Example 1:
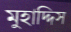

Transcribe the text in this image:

মুহাদ্দিস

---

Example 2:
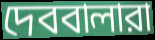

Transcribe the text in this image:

দেববালারা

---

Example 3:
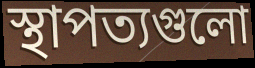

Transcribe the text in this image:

স্থাপত্যগুলো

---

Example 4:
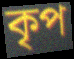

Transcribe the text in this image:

কৃপ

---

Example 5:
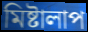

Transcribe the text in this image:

মিষ্টালাপ